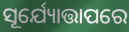
ସୂର୍ଯ୍ୟୋତ୍ତାପରେ